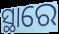
ସ୍ଥାରେ